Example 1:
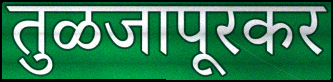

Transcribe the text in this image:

तुळजापूरकर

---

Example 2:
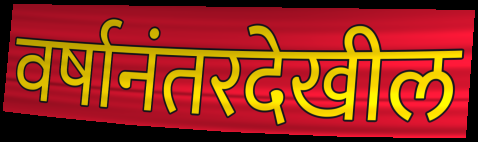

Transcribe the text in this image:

वर्षानंतरदेखील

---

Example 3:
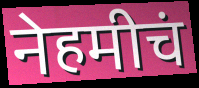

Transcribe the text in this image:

नेहमीचं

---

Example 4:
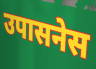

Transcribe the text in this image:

उपासनेस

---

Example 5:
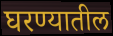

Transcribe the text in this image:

घरण्यातील